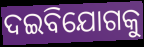
ଦଇବିଯୋଗକୁ